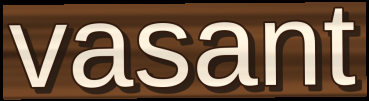
vasant